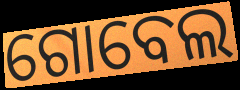
ଗୋବେଲ